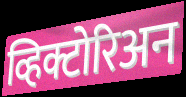
व्हिक्टोरिअन